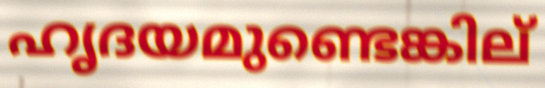
ഹൃദയമുണ്ടെങ്കില്